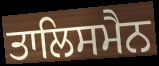
ਤਾਲਿਸਮੈਨ